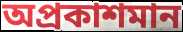
অপ্রকাশমান